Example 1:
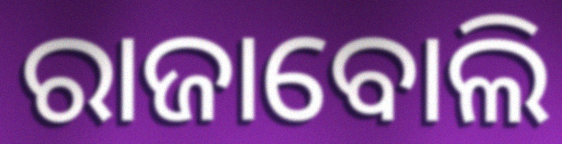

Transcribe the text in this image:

ରାଜାବୋଲି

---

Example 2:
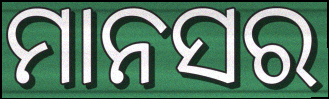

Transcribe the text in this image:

ମାନସର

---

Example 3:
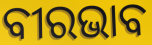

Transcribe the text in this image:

ବୀରଭାବ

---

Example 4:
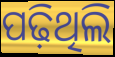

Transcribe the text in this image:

ପଢ଼ିଥିଲି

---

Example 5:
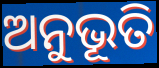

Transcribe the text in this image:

ଅନୁଭୂତି